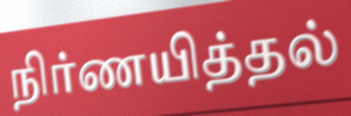
நிர்ணயித்தல்